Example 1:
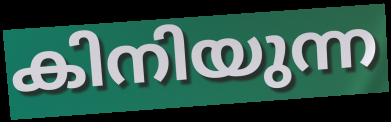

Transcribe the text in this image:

കിനിയുന്ന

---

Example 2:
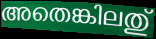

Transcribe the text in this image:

അതെങ്കിലതു്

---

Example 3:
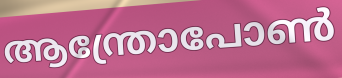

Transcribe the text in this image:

ആന്ത്രോപോൺ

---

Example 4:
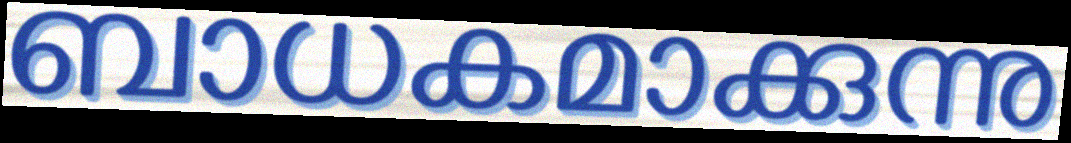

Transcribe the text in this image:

ബാധകമാക്കുന്നു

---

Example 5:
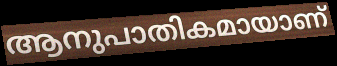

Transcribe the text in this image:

ആനുപാതികമായാണ്